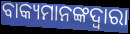
ବାକ୍ୟମାନଙ୍କଦ୍ୱାରା